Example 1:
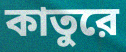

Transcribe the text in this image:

কাতুরে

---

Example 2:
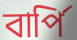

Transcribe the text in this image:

বার্পি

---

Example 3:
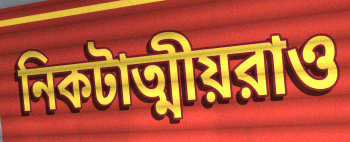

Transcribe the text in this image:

নিকটাত্মীয়রাও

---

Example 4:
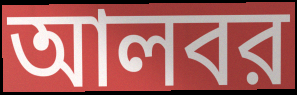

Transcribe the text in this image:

আলবর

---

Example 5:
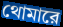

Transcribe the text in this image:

থোমারে